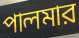
পালমার